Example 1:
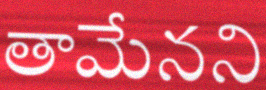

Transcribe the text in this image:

తామేనని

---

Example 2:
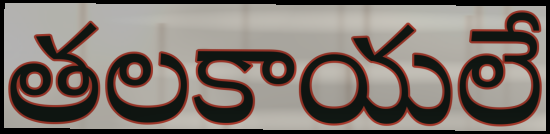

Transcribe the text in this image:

తలకాయలే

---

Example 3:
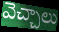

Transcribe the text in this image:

వెచ్చాలు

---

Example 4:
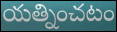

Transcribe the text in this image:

యత్నించటం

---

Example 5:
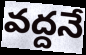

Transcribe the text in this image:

వద్దనే